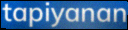
tapiyanan